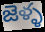
జెళ్ళ